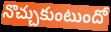
నొచ్చుకుంటుందో